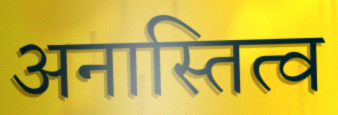
अनास्तित्व